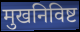
मुखनिविष्ट